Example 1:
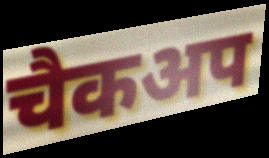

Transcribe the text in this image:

चैकअप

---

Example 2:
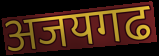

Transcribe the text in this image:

अजयगढ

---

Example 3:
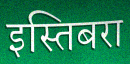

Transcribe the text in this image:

इस्तिबरा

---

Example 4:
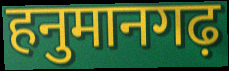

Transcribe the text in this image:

हनुमानगढ़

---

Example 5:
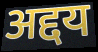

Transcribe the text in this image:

अद्दय